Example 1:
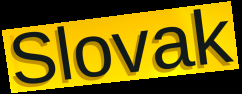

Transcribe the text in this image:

Slovak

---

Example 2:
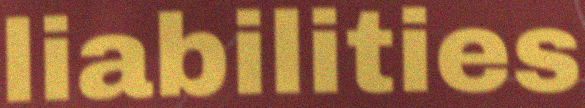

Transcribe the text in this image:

liabilities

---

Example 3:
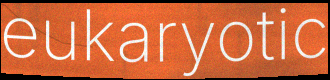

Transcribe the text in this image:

eukaryotic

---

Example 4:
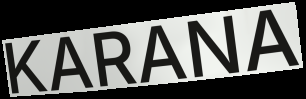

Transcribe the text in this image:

KARANA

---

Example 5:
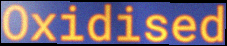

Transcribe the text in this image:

Oxidised